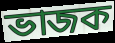
ভাজক